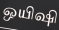
ஒயிஷி